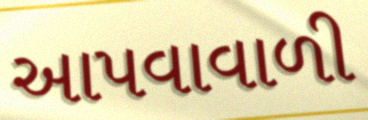
આપવાવાળી